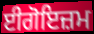
ਈਗੋਇਜ਼ਮ